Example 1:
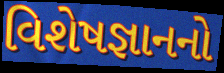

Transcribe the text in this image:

વિશેષજ્ઞાનનો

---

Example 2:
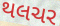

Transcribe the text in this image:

થલચર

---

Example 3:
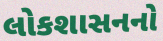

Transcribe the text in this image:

લોકશાસનનો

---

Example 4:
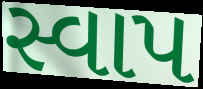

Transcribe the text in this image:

સ્વાપ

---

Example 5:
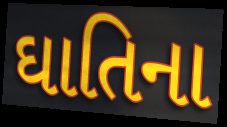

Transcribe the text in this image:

ઘાતિના